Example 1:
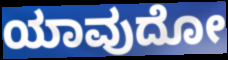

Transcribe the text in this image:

ಯಾವುದೋ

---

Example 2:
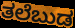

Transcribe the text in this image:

ತಲೆಬುಡ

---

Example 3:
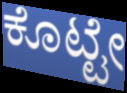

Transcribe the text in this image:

ಕೊಟ್ಟೇ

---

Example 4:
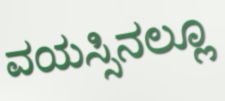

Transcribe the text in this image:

ವಯಸ್ಸಿನಲ್ಲೂ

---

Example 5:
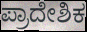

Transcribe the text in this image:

ಪ್ರಾದೇಶಿಕ